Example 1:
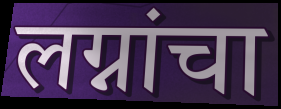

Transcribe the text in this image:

लग्नांचा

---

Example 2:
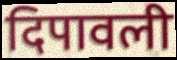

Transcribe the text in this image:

दिपावली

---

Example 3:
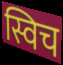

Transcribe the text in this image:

स्विच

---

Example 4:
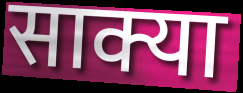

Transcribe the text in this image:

साक्या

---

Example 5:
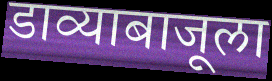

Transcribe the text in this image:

डाव्याबाजूला